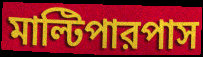
মাল্টিপারপাস